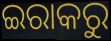
ଇରାକରୁ